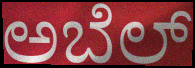
ಅಬೆಲ್